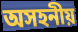
অসহনীয়